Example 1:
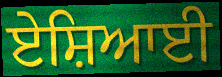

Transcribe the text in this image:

ਏਸ਼ਿਆਈ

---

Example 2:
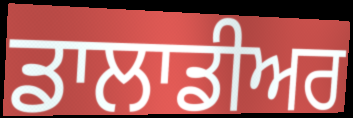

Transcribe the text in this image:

ਡਾਲਾਡੀਅਰ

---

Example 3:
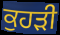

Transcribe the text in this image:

ਕੁਹੜੀ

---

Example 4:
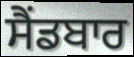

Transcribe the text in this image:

ਸੈਂਡਬਾਰ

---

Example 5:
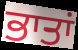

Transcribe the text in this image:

ਭਾਤਾਂ